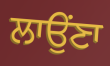
ਲਾਉਂਣਾ